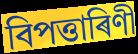
বিপত্তাৰিণী